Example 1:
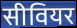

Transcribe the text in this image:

सीवियर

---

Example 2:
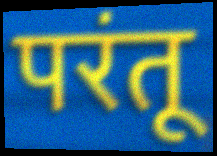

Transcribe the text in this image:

परंतू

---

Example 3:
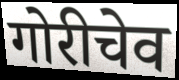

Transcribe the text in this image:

गोरीचेव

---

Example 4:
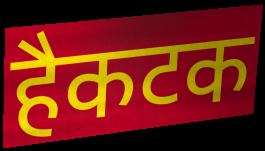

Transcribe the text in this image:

हैकटक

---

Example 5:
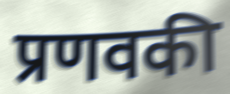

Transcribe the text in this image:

प्रणवकी